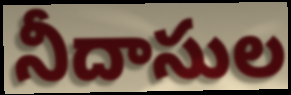
నీదాసుల